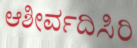
ಆಶೀರ್ವದಿಸಿರಿ